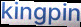
kingpin